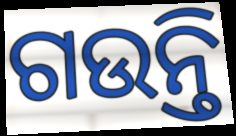
ଗଉନ୍ତି